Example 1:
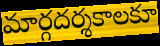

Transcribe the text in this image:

మార్గదర్శకాలకూ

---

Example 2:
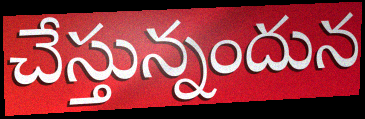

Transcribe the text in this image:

చేస్తున్నందున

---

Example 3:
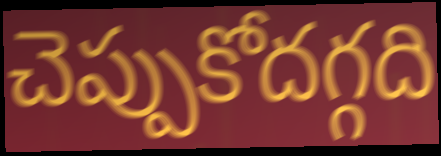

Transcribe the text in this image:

చెప్పుకోదగ్గది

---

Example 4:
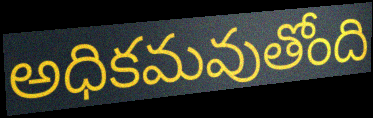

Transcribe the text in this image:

అధికమవుతోంది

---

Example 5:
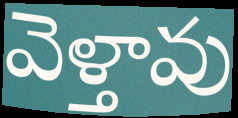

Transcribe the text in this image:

వెళ్తావు